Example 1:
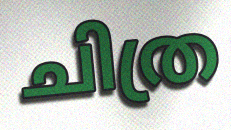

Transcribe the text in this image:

ചിത്ര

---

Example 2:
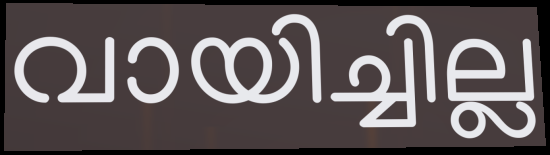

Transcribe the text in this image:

വായിച്ചില്ല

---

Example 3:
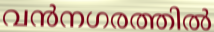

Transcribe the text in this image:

വൻനഗരത്തിൽ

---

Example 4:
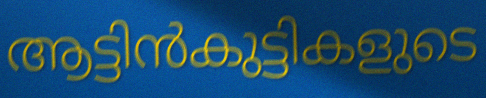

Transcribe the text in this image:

ആട്ടിൻകുട്ടികളുടെ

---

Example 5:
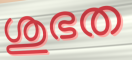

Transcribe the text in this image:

ശുഭത